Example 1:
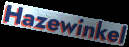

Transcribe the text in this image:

Hazewinkel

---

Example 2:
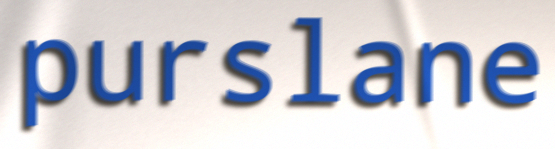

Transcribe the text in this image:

purslane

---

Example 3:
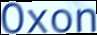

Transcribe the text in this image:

Oxon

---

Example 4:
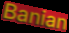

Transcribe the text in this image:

Banian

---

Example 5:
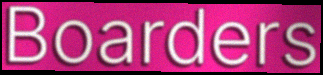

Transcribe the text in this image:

Boarders